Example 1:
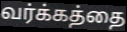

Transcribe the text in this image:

வர்க்கத்தை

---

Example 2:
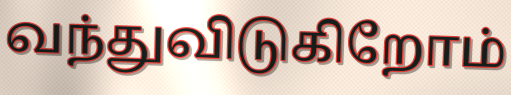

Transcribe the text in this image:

வந்துவிடுகிறோம்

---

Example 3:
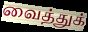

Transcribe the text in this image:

வைத்துக்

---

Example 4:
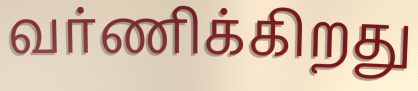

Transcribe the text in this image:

வர்ணிக்கிறது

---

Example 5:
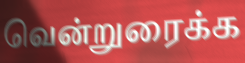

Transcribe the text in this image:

வென்றுரைக்க